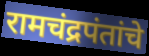
रामचंद्रपंतांचे